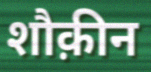
शौक़ीन